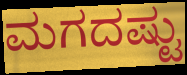
ಮಗದಷ್ಟು